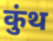
कुंथ